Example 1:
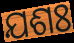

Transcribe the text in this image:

ଯଶଃ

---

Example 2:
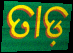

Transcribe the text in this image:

ତାଡ଼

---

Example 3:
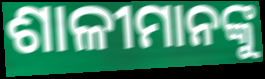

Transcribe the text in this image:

ଶାଳୀମାନଙ୍କୁ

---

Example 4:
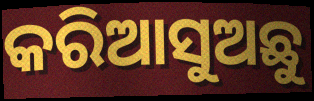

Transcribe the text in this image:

କରିଆସୁଅଛୁ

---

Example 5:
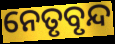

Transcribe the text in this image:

ନେତୃବୃନ୍ଦ